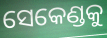
ସେକେଣ୍ଡକୁ